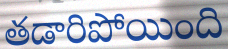
తడారిపోయింది